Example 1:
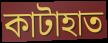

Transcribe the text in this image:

কাটাহাত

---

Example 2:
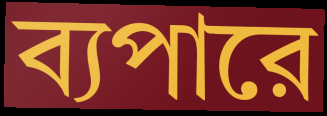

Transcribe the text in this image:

ব্যপারে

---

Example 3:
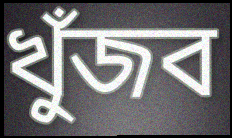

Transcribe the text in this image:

খুঁজব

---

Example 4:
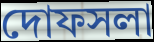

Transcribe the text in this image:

দোফসলা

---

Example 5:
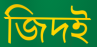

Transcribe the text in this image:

জিদই